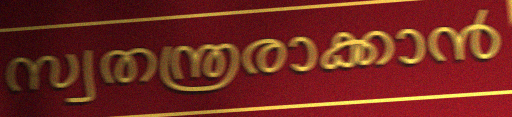
സ്വതന്ത്രരാക്കാൻ